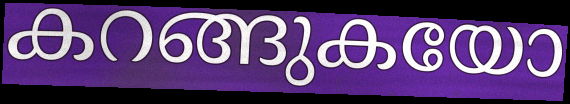
കറങ്ങുകയോ